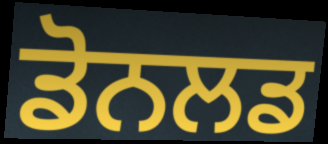
ਡੋਨਲਡ